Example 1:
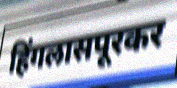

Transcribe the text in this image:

हिंगलासपूरकर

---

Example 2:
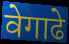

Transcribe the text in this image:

वेगाढे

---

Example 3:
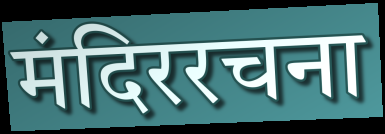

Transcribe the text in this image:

मंदिररचना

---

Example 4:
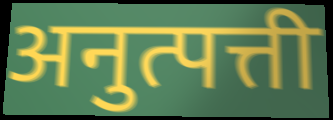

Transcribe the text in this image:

अनुत्पत्ती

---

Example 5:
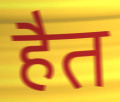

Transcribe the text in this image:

हैत